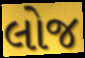
લોજ